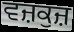
ਵਜ਼ਕੁਜ਼